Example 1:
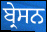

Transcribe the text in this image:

ਬ੍ਰੇਸਨ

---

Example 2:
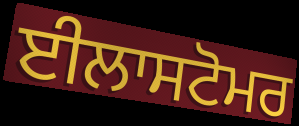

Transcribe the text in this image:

ਈਲਾਸਟੋਮਰ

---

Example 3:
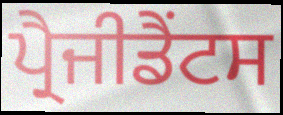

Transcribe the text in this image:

ਪ੍ਰੈਜੀਡੈਂਟਸ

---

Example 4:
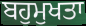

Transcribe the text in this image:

ਬਹੁਮੁਖਤਾ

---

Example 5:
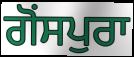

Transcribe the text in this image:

ਗੋਂਸਪੁਰਾ